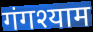
गंगश्याम